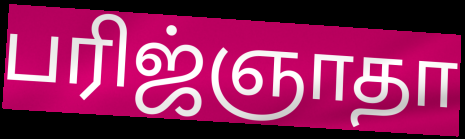
பரிஜ்ஞாதா